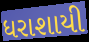
ધરાશાયી